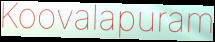
Koovalapuram